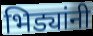
भिड्यांनी